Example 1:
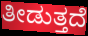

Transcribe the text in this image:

ತೀಡುತ್ತದೆ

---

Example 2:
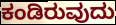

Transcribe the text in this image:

ಕಂಡಿರುವುದು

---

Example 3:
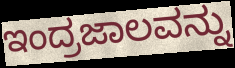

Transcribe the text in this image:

ಇಂದ್ರಜಾಲವನ್ನು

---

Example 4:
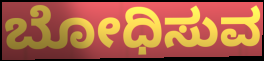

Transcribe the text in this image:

ಬೋಧಿಸುವ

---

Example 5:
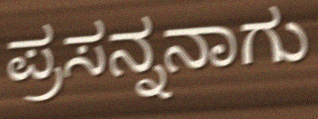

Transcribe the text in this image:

ಪ್ರಸನ್ನನಾಗು